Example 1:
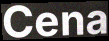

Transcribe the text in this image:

Cena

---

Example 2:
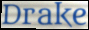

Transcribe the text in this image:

Drake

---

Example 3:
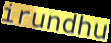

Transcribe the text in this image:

irundhu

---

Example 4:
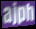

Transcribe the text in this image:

ajph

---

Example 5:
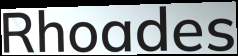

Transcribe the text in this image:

Rhoades